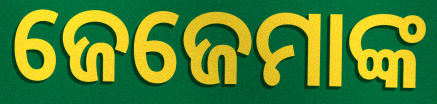
ଜେଜେମାଙ୍କ